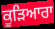
ਕੂੜਿਆਰਾ